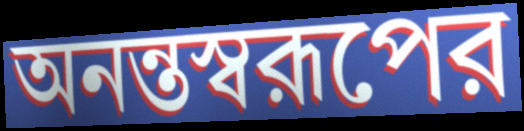
অনন্তস্বরূপের